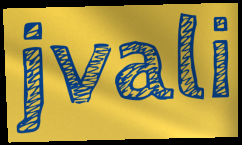
jvali